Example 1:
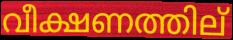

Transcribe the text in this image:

വീക്ഷണത്തില്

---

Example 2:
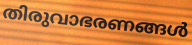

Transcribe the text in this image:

തിരുവാഭരണങ്ങൾ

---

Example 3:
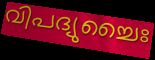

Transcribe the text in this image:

വിപദ്യുച്ചൈഃ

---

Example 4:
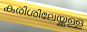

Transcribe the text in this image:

കുരിശിലേയ്ക്കുള്ള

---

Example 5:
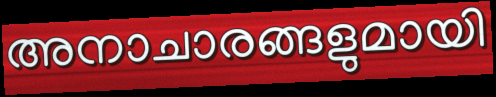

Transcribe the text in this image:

അനാചാരങ്ങളുമായി